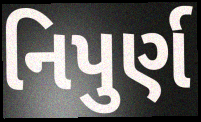
નિપુર્ણ